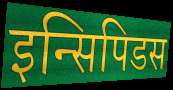
इन्सिपिडस